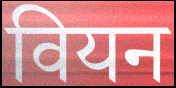
वियन